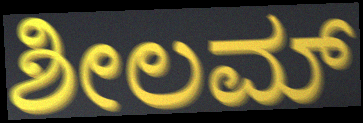
ಶೀಲಮ್